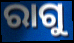
ରାଗୁ